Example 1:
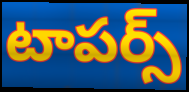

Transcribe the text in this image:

టాపర్స్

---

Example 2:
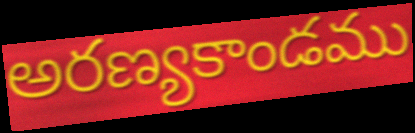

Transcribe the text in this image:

అరణ్యకాండము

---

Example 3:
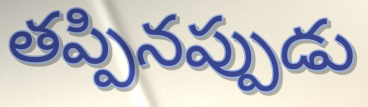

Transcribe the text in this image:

తప్పినప్పుడు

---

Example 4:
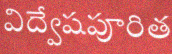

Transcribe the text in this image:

విద్వేషపూరిత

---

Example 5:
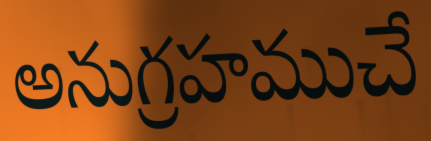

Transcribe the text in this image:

అనుగ్రహముచే